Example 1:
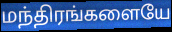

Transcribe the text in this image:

மந்திரங்களையே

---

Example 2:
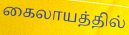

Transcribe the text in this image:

கைலாயத்தில்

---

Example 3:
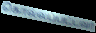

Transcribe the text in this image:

கொல்லப்பட்டவர்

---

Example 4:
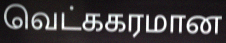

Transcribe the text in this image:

வெட்ககரமான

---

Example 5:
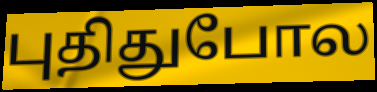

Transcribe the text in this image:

புதிதுபோல